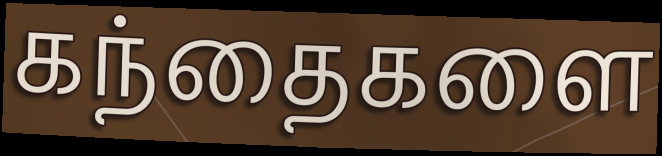
கந்தைகளை